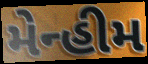
મેન્હીમ